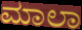
ಮಾಲಾ